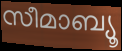
സീമാബ്യൂ